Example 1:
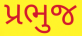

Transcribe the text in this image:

પ્રભુજ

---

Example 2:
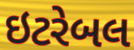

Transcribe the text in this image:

ઇટરેબલ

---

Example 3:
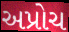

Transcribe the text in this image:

અપ્રોચ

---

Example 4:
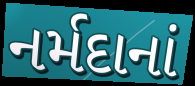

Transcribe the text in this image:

નર્મદાનાં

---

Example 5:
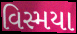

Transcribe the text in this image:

વિસ્મયા